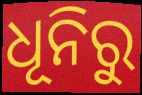
ଧୂନିରୁ